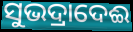
ସୁଭଦ୍ରାଦେଈ